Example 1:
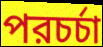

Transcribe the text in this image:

পরচর্চা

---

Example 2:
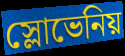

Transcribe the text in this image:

স্লোভেনিয়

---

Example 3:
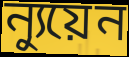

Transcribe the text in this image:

ন্যুয়েন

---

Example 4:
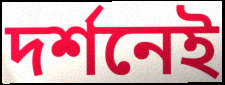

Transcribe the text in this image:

দর্শনেই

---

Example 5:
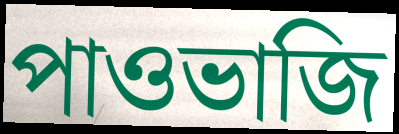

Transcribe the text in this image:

পাওভাজি